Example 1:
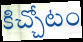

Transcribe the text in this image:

కిచ్చోటం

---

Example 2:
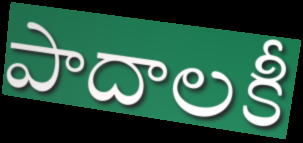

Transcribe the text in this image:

పాదాలకీ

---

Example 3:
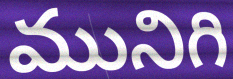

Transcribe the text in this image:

మునిగి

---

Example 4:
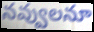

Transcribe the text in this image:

నవ్వులనూ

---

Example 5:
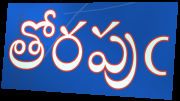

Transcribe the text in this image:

తోరపుఁ